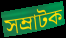
সম্ৰাটক